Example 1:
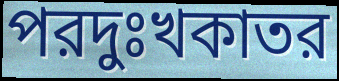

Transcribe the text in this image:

পরদুঃখকাতর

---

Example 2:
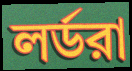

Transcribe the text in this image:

লর্ডরা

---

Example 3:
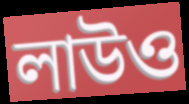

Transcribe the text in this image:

লাউও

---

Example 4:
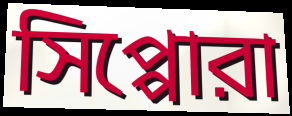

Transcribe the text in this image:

সিপ্পোরা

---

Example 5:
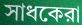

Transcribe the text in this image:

সাধকেরা